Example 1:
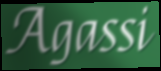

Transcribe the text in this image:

Agassi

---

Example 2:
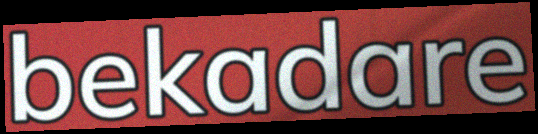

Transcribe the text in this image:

bekadare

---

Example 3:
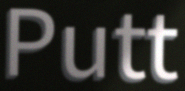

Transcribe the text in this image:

Putt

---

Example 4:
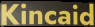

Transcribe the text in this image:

Kincaid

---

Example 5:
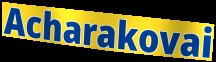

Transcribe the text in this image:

Acharakovai